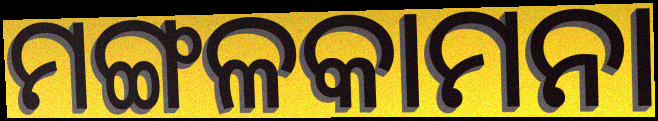
ମଙ୍ଗଳକାମନା